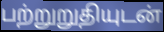
பற்றுறுதியுடன்